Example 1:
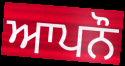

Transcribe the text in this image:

ਆਪਨੌ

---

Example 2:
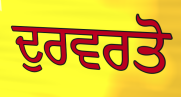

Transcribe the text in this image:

ਦੁਰਵਰਤੋ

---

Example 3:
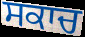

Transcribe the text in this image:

ਸਕਾਚ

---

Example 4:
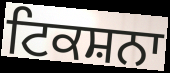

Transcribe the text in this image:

ਟਿਕਸ਼ਨਾ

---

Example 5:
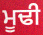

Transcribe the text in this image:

ਮੂਢੀ